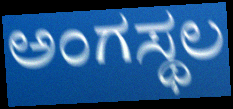
ಅಂಗಸ್ಥಲ